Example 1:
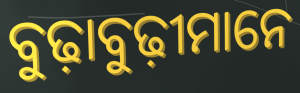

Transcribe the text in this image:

ବୁଢ଼ାବୁଢ଼ୀମାନେ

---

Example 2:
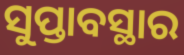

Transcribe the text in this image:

ସୁପ୍ତାବସ୍ଥାର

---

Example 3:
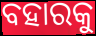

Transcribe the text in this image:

ବହାରକୁ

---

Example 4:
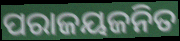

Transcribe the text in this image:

ପରାଜୟଜନିତ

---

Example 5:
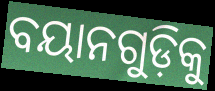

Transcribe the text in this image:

ବୟାନଗୁଡ଼ିକୁ